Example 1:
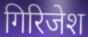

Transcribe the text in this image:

गिरिजेश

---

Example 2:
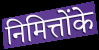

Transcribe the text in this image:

निमित्तोंके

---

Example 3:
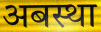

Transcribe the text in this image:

अबस्था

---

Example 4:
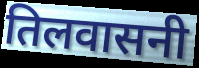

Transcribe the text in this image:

तिलवासनी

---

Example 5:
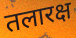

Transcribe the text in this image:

तलारक्ष